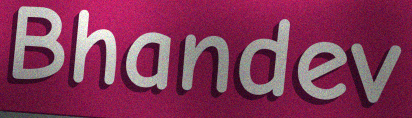
Bhandev